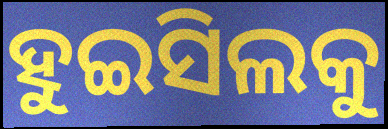
ହୁଇସିଲକୁ